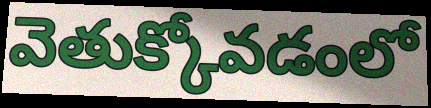
వెతుక్కోవడంలో